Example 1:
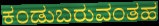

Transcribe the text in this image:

ಕಂಡುಬರುವಂತಹ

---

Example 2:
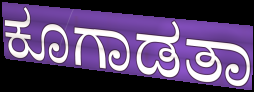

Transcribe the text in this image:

ಕೂಗಾಡತಾ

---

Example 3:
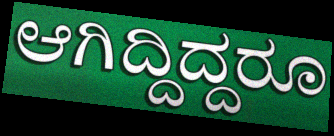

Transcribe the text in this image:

ಆಗಿದ್ದಿದ್ದರೂ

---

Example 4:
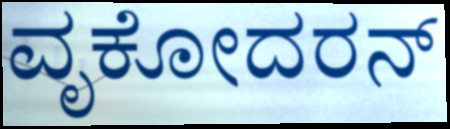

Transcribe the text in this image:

ವೃಕೋದರನ್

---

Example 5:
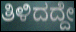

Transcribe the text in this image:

ತಿಳಿದದ್ದೇ